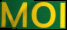
MOI